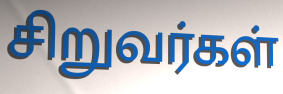
சிறுவர்கள்